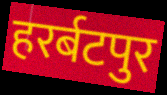
हरर्बटपुर